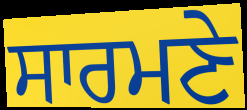
ਸਾਰਮਣੇ